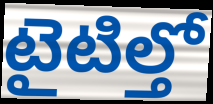
టైటిల్తో